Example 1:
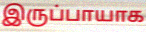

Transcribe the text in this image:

இருப்பாயாக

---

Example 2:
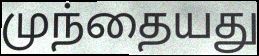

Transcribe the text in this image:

முந்தையது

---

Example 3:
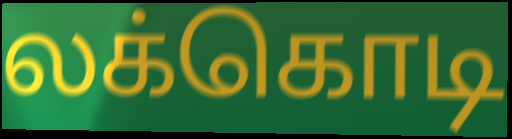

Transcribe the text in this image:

லக்கொடி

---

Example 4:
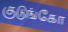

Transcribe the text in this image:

குடுங்கோ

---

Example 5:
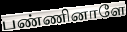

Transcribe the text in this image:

பண்ணினாளே